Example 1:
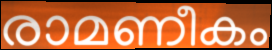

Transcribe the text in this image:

രാമണീകം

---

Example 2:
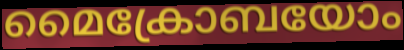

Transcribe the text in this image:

മൈക്രോബയോം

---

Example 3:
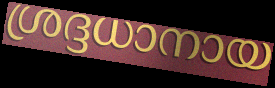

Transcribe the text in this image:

ശ്രദ്ദധാനായ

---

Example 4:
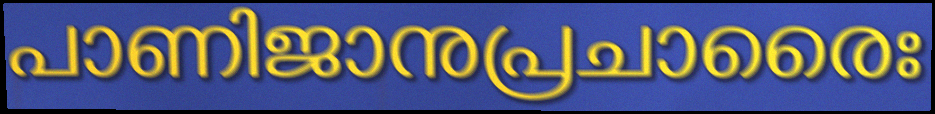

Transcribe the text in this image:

പാണിജാനുപ്രചാരൈഃ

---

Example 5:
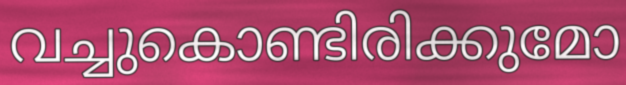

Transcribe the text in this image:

വച്ചുകൊണ്ടിരിക്കുമോ